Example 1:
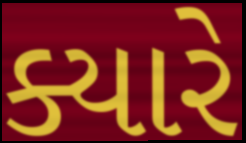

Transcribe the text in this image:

ક્યારે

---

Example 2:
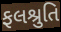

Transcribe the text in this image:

ફલશ્રુતિ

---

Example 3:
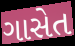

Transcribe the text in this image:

ગાસેત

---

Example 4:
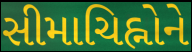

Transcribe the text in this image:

સીમાચિહ્નોને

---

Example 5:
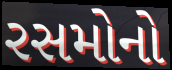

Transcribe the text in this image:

રસમોનો